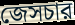
জেসচার